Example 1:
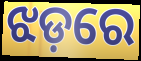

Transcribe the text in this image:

ଝଡ଼ରେ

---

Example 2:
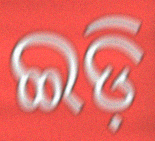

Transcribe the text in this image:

ଇଡ଼ି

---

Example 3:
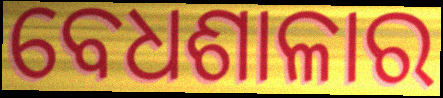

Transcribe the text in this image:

ବେଧଶାଳାର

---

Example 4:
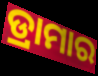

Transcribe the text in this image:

ଡ୍ରାମାର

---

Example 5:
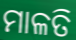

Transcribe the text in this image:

ମାଳତି